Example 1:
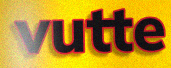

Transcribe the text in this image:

vutte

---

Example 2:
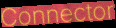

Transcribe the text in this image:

Connector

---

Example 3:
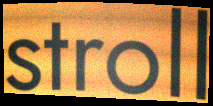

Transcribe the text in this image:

stroll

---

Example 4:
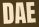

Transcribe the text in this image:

DAE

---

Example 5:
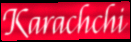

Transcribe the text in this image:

Karachchi